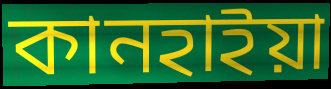
কানহাইয়া